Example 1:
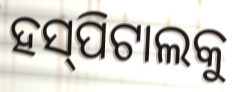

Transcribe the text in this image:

ହସ୍‌ପିଟାଲକୁ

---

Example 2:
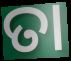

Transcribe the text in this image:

ତା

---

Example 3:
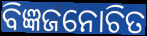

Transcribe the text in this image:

ବିଜ୍ଞଜନୋଚିତ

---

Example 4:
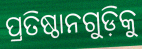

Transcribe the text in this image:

ପ୍ରତିଷ୍ଠାନଗୁଡ଼ିକୁ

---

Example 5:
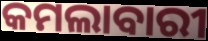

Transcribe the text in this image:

କମଲାବାରୀ